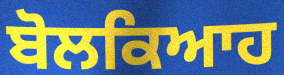
ਬੋਲਕਿਆਹ